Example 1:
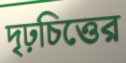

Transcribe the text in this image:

দৃঢ়চিত্তের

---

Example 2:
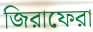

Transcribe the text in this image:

জিরাফেরা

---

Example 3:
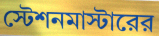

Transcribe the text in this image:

স্টেশনমাস্টারের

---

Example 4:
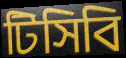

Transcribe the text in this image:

টিসিবি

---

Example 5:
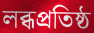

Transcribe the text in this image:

লব্ধপ্রতিষ্ঠ